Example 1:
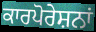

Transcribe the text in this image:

ਕਾਰਪੋਰੇਸ਼ਨਾਂ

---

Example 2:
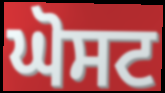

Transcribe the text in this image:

ਘੋਸਟ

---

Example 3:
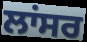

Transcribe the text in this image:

ਲਾਂਸਰ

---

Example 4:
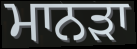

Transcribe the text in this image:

ਮਾਨੜਾ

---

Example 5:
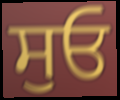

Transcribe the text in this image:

ਸੁਓ